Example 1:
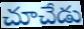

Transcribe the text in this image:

చూచేడు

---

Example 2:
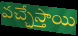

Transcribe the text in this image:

వచ్చేస్తాయి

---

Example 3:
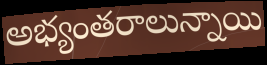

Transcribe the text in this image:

అభ్యంతరాలున్నాయి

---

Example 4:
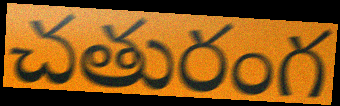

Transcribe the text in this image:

చతురంగ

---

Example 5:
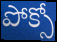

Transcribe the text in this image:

పోక్సో